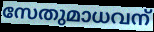
സേതുമാധവന്